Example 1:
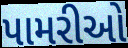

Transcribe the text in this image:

પામરીઓ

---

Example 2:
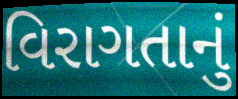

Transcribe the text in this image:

વિરાગતાનું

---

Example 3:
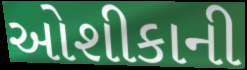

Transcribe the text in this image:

ઓશીકાની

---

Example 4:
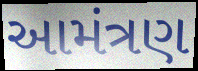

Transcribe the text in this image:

આમંત્રણ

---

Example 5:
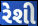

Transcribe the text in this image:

રેશી